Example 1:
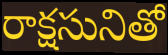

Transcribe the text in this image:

రాక్షసునితో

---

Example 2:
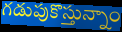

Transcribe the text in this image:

గడుపుకొస్తున్నాం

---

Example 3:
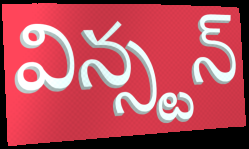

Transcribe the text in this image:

విన్స్టన్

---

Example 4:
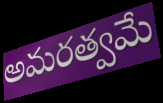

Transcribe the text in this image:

అమరత్వమే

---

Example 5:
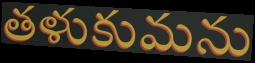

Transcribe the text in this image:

తళుకుమను